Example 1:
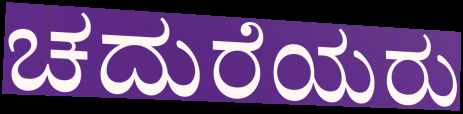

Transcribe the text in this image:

ಚದುರೆಯರು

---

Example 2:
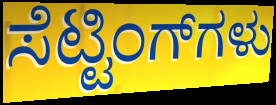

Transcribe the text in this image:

ಸೆಟ್ಟಿಂಗ್‌ಗಳು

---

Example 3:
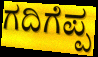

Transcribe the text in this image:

ಗದಿಗೆಪ್ಪ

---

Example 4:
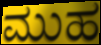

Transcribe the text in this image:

ಮುಹ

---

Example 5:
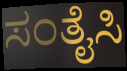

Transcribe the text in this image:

ಸಂತೈಸಿ